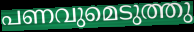
പണവുമെടുത്തു